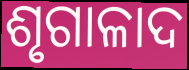
ଶୃଗାଳାଦ